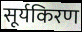
सूर्यकिरण